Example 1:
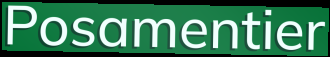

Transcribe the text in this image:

Posamentier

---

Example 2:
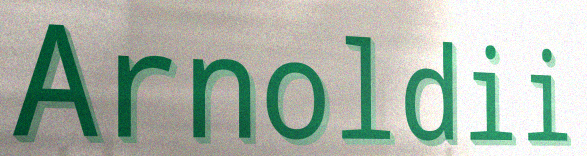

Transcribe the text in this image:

Arnoldii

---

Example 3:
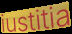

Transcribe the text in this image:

iustitia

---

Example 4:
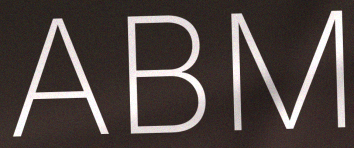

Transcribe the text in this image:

ABM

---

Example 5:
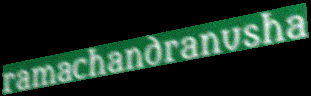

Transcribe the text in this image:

ramachandranusha